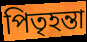
পিতৃহন্তা